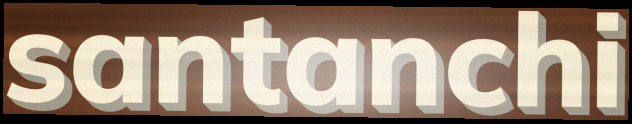
santanchi